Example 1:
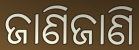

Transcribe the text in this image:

ଜାଣିଜାଣି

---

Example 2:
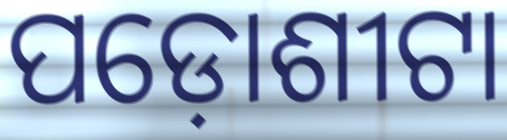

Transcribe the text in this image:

ପଡ଼ୋଶୀଟା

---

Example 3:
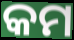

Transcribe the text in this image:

କମ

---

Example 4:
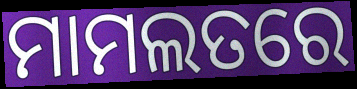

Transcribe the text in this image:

ମାମଲତରେ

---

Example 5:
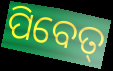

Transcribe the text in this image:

ପିବେତ୍